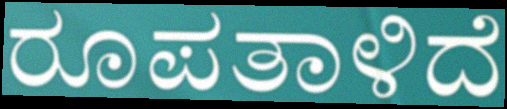
ರೂಪತಾಳಿದೆ